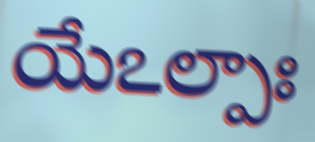
యేఽల్పాః